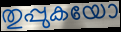
തുപ്പുകയോ